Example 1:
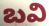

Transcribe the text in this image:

బవి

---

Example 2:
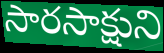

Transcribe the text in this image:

సారసాక్షుని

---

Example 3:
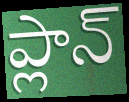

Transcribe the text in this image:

ప్లాన్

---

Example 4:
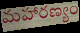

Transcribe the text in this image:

మహారణ్యం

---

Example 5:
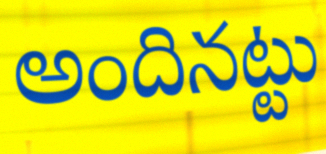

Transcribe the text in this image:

అందినట్టు